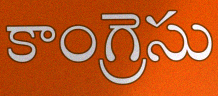
కాంగ్రెసు